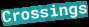
Crossings